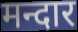
मन्दार